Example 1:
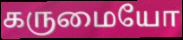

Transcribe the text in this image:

கருமையோ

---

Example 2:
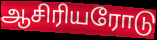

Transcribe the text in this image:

ஆசிரியரோடு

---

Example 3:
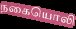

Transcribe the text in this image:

நகையொலி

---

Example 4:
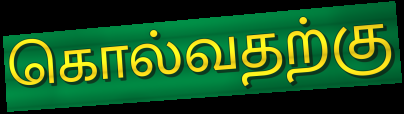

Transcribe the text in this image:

கொல்வதற்கு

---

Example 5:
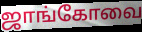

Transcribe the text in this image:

ஜாங்கோவை